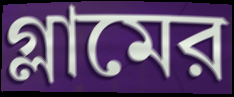
গ্লামের